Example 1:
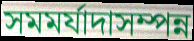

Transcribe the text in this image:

সমমর্যাদাসম্পন্ন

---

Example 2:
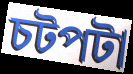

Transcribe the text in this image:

চটপটা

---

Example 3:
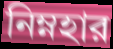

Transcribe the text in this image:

নিম্নহার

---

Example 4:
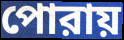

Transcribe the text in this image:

পোরায়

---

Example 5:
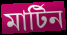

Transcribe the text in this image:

মার্টিন